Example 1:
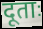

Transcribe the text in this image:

दूताः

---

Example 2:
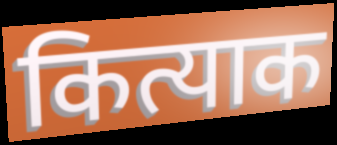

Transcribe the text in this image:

कित्याक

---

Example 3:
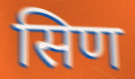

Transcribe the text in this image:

सिण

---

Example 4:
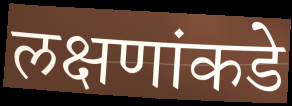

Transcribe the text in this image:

लक्षणांकडे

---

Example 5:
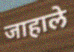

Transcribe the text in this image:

जाहाले